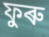
ফুৰু